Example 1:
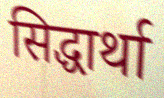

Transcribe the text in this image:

सिद्धार्था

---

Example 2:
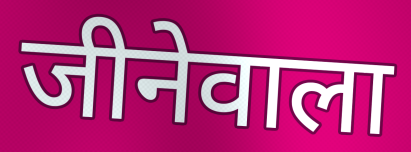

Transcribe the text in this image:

जीनेवाला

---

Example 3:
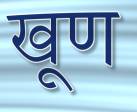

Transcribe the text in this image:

खूण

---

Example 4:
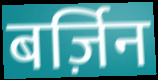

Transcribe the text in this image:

बर्ज़िन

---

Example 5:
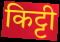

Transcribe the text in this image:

किट्टी